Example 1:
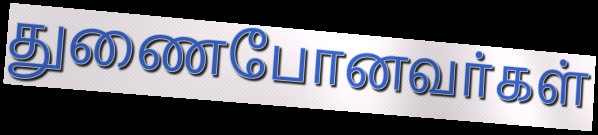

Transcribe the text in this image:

துணைபோனவர்கள்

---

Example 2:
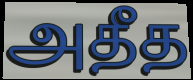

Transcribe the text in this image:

அதீத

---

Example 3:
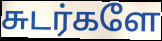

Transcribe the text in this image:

சுடர்களே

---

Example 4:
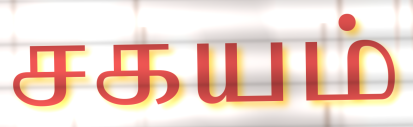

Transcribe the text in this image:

சகயம்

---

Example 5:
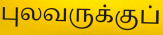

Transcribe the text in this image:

புலவருக்குப்